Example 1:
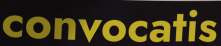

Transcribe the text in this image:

convocatis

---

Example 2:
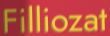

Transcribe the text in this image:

Filliozat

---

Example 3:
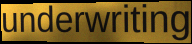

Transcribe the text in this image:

underwriting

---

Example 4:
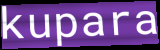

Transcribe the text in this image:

kupara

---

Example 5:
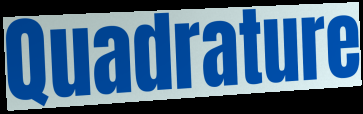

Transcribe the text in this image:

Quadrature